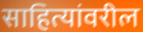
साहित्यांवरील